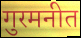
गुरमनीत